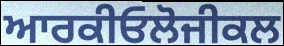
ਆਰਕੀਓਲੋਜੀਕਲ